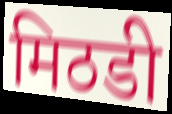
मिठडी